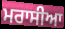
ਮਰਾਸੀਆ